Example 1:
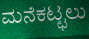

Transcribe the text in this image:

ಮನೆಕಟ್ಟಲು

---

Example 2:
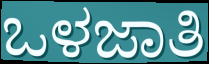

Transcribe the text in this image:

ಒಳಜಾತಿ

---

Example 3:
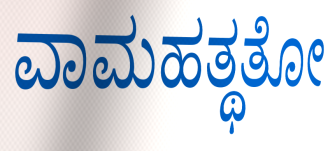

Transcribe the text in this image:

ವಾಮಹತ್ಥತೋ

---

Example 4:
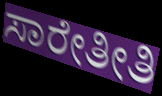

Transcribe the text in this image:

ಸಾರೇತೀತಿ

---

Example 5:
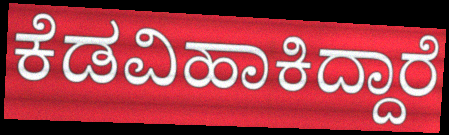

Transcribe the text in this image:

ಕೆಡವಿಹಾಕಿದ್ದಾರೆ